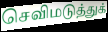
செவிமடுத்துக்